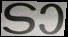
ടാ